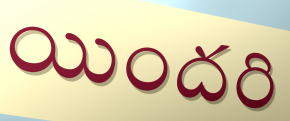
యిందరి